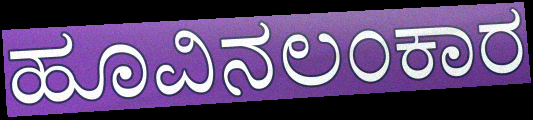
ಹೂವಿನಲಂಕಾರ